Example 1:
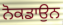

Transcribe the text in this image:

ਨੋਕਡਾਉਨ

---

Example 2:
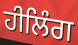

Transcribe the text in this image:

ਹੀਲਿੰਗ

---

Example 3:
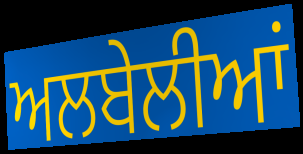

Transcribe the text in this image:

ਅਲਬੇਲੀਆਂ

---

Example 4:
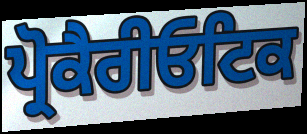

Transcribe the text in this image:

ਪ੍ਰੋਕੈਰੀਓਟਿਕ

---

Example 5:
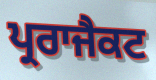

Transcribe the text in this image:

ਪ੍ਰਰਾਜੈਕਟ